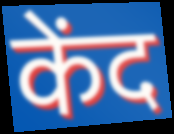
केंद